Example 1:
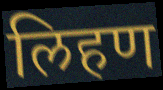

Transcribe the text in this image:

लिहण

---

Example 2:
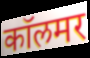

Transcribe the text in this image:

कॉलमर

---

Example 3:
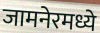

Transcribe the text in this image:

जामनेरमध्ये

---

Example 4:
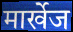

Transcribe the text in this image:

मार्खेज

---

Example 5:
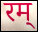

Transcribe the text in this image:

रम्